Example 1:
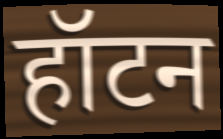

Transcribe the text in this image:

हॉटन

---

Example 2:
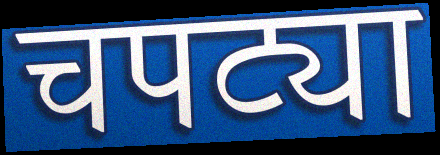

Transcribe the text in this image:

चपट्या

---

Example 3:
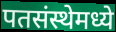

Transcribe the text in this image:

पतसंस्थेमध्ये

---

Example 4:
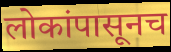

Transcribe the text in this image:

लोकांपासूनच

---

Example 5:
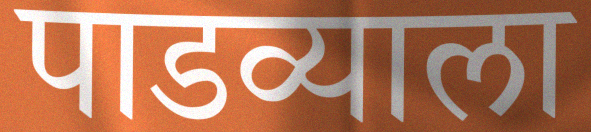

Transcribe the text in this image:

पाडव्याला